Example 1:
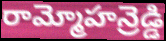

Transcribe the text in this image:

రామ్మోహన్రెడ్డి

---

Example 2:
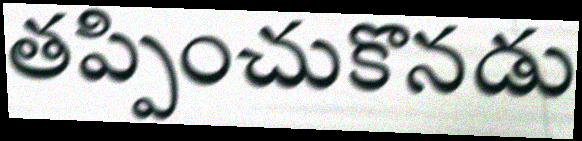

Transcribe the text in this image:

తప్పించుకొనడు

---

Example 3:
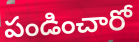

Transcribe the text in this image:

పండించారో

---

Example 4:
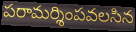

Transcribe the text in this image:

పరామర్శింపవలసిన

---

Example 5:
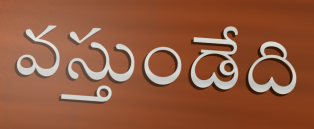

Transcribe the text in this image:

వస్తుండేది